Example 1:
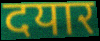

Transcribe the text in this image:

दयार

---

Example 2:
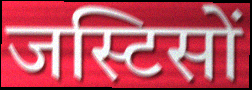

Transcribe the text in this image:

जस्टिसों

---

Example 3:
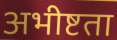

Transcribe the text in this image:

अभीष्टता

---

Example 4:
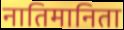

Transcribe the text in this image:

नातिमानिता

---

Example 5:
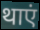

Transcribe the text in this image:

थाएं